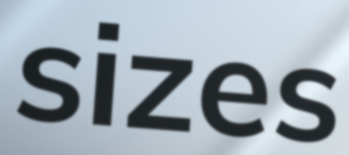
sizes